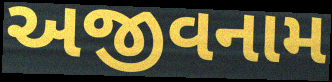
અજીવનામ